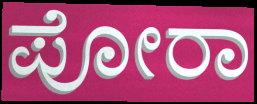
ಪೋರಾ